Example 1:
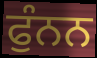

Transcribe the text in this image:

ਫੁੰਨਨ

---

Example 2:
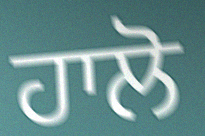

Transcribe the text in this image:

ਹਾਲੋ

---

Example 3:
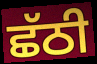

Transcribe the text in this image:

ਛੱਠੀ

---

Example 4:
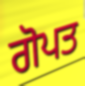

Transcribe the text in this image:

ਗੋਪਤ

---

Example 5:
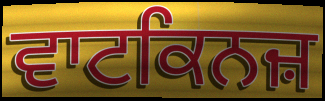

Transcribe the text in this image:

ਵਾਟਕਿਨਜ਼